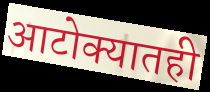
आटोक्यातही